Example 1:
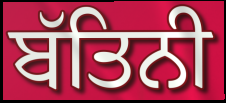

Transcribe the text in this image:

ਬੱਤਿਨੀ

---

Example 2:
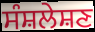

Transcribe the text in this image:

ਸੰਸ਼ਲੇਸ਼ਣ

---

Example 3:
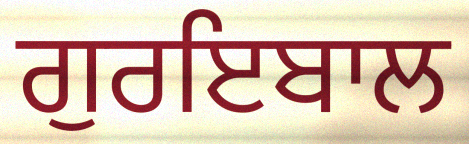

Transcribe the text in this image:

ਗੁਰਇਬਾਲ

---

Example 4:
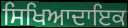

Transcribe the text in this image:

ਸਿਖਿਆਦਾਇਕ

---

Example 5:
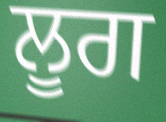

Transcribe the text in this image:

ਲੂਗ